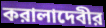
করালাদেবীর